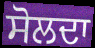
ਸੋਲਦਾ